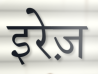
इरेज़